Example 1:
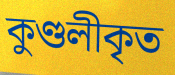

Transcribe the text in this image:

কুণ্ডলীকৃত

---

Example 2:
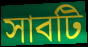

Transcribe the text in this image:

সাবটি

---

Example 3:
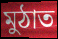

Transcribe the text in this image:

মুঠাত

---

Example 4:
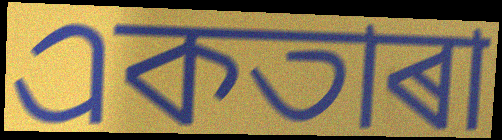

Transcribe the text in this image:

একতাৰা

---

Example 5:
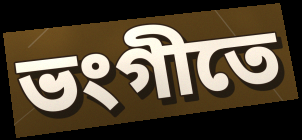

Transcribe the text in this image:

ভংগীতে